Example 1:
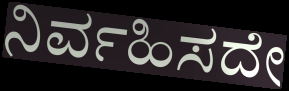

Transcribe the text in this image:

ನಿರ್ವಹಿಸದೇ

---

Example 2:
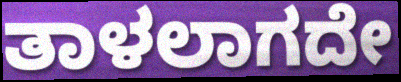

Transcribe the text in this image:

ತಾಳಲಾಗದೇ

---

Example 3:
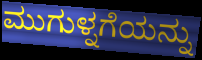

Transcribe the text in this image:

ಮುಗುಳ್ನಗೆಯನ್ನು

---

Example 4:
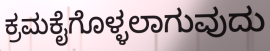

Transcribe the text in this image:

ಕ್ರಮಕೈಗೊಳ್ಳಲಾಗುವುದು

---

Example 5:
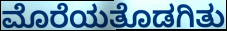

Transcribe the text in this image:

ಮೊರೆಯತೊಡಗಿತು